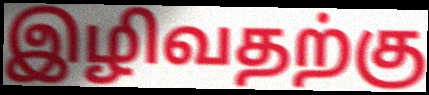
இழிவதற்கு